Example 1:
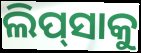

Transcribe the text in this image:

ଲିପ୍‍ସାକୁ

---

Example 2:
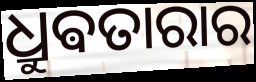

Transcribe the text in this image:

ଧ୍ରୁଵତାରାର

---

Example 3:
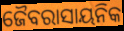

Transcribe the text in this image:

ଜୈବରାସାୟନିକ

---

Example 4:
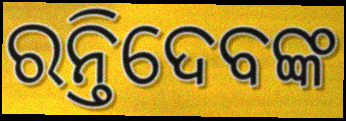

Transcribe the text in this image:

ରନ୍ତିଦେବଙ୍କ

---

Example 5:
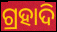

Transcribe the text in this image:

ଗ୍ରହାଦି